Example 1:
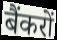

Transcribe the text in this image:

बैंकरों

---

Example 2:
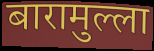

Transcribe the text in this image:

बारामुल्‍ला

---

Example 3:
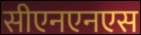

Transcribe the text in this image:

सीएनएनएस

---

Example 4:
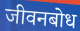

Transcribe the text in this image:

जीवनबोध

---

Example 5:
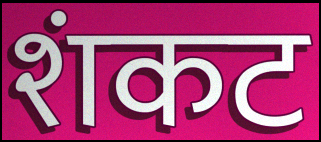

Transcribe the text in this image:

शंकट